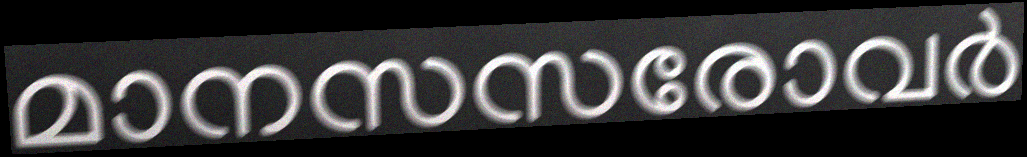
മാനസസരോവർ